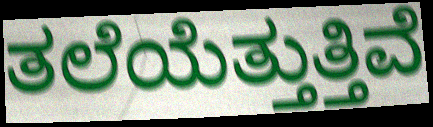
ತಲೆಯೆತ್ತುತ್ತಿವೆ